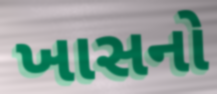
ખાસનો